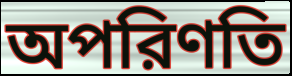
অপরিণতি